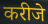
करीजे